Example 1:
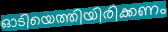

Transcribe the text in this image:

ഓടിയെത്തിയിരിക്കണം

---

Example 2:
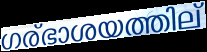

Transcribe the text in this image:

ഗര്ഭാശയത്തില്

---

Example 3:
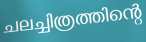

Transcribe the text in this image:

ചലച്ചിത്രത്തിന്റെ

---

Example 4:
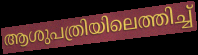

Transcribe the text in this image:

ആശുപത്രിയിലെത്തിച്ച്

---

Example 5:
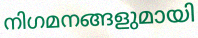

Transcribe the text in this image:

നിഗമനങ്ങളുമായി